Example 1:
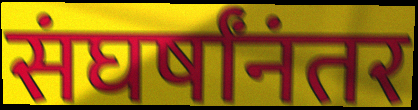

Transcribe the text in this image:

संघर्षांनंतर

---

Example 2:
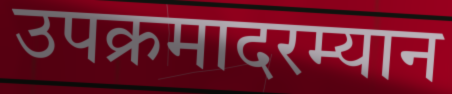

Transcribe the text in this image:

उपक्रमादरम्यान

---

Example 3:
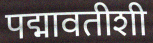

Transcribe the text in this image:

पद्मावतीशी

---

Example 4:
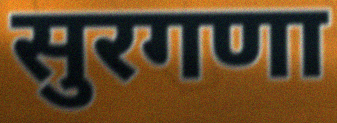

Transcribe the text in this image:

सुरगणा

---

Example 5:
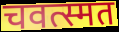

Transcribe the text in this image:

चवत्स्मत